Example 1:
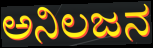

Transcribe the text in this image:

ಅನಿಲಜನ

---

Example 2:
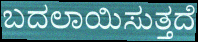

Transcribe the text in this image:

ಬದಲಾಯಿಸುತ್ತದೆ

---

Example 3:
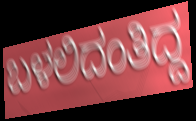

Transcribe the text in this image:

ಬಳಲಿದಂತಿದ್ದ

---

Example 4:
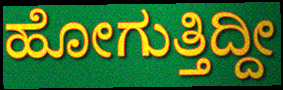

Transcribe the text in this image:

ಹೋಗುತ್ತಿದ್ದೀ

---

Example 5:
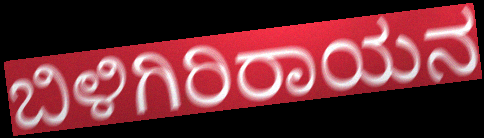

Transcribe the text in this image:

ಬಿಳಿಗಿರಿರಾಯನ